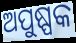
ଅପୁଷ୍ପକ